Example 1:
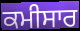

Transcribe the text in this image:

ਕਮੀਸਾਰ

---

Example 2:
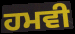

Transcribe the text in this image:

ਹਮਵੀ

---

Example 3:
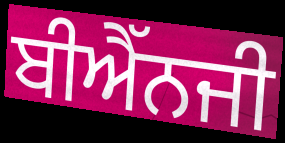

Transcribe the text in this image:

ਬੀਐੱਨਜੀ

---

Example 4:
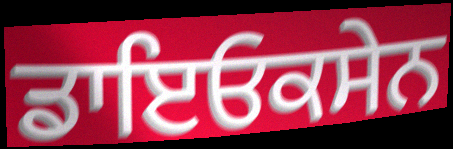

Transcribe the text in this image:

ਡਾਇਓਕਸੇਨ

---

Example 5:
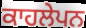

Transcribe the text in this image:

ਕਾਹਲੇਪਨ